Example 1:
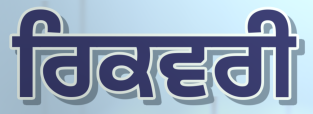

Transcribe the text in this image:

ਰਿਕਵਰੀ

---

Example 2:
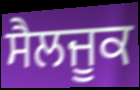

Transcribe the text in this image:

ਸੈਲਜੂਕ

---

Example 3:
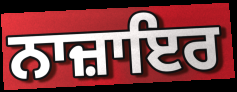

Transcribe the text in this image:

ਨਾਜ਼ਾਇਰ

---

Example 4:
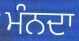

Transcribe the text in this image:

ਮੰਨਦਾ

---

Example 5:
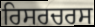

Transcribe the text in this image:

ਰਿਸਰਚਰਸ